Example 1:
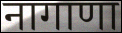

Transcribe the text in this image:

नागाणा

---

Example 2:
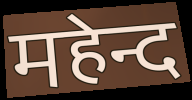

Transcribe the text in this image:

महेन्द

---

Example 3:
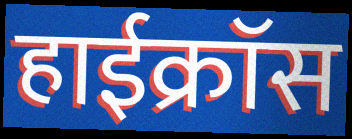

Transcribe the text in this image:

हाईक्रॉस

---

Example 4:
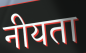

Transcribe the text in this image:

नीयता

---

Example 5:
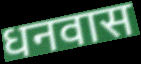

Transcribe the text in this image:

धनवास